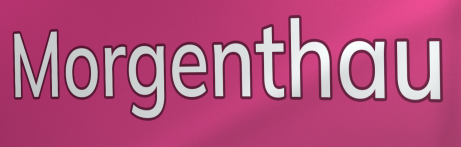
Morgenthau